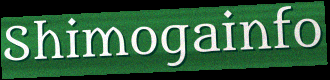
Shimogainfo